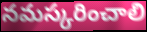
నమస్కరించాలి